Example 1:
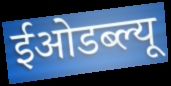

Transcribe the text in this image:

ईओडब्ल्यू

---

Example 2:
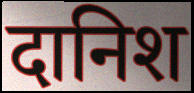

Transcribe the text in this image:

दानिश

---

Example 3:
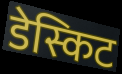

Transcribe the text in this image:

डेस्किट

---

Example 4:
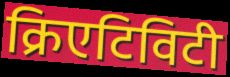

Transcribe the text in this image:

क्रिएटिविटी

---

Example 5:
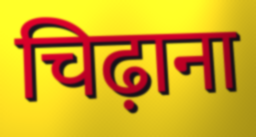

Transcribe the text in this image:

चिढ़ाना